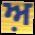
ਅ਼